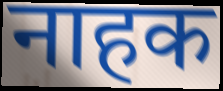
नाहक